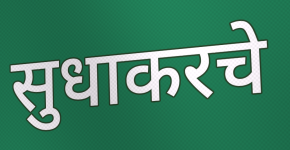
सुधाकरचे